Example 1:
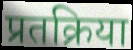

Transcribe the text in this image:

प्रतक्रिया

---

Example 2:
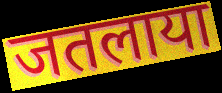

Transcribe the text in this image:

जतलाया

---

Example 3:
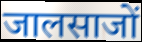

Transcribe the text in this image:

जालसाजों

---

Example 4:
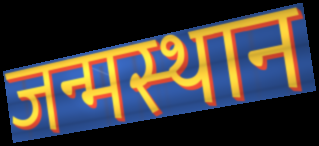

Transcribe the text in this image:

जन्मस्थान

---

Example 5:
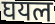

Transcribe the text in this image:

घयल